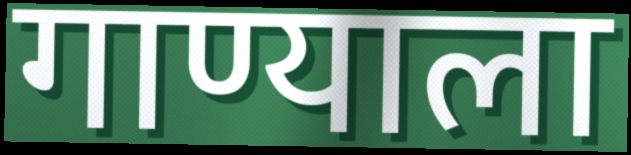
गाण्याला